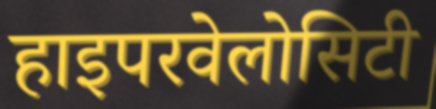
हाइपरवेलोसिटी